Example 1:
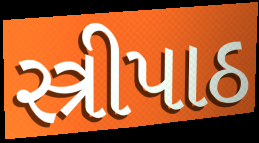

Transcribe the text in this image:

સ્ત્રીપાઠ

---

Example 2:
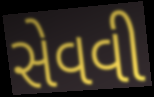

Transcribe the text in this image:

સેવવી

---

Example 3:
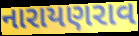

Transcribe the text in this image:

નારાયણરાવ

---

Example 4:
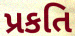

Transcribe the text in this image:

પ્રકતિ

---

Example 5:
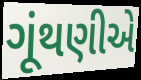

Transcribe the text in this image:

ગૂંથણીએ